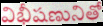
విభీషణునితో